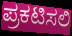
ಪ್ರಕಟಿಸಲಿ